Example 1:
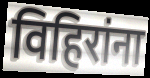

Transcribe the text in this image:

विहिरांना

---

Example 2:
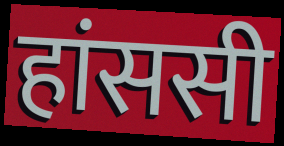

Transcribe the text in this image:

हांससी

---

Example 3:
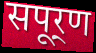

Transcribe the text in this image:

सपूर्ण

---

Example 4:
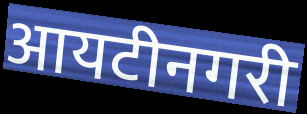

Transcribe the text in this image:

आयटीनगरी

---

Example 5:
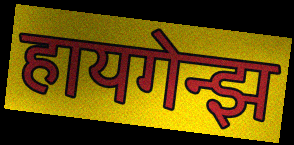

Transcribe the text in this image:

हायगेन्झ